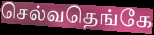
செல்வதெங்கே